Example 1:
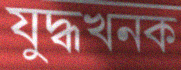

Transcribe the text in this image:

যুদ্ধখনক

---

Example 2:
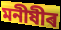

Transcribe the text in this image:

মনীষীৰ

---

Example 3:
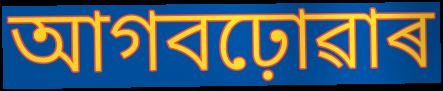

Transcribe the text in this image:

আগবঢ়োৱাৰ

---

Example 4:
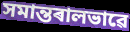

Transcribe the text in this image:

সমান্তৰালভাৱে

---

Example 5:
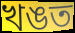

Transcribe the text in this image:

খঙত